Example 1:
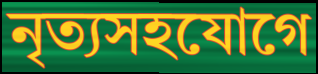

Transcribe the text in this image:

নৃত্যসহযোগে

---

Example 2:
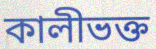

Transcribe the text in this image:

কালীভক্ত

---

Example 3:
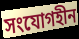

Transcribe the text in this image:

সংযোগহীন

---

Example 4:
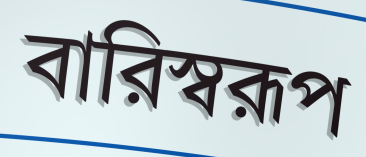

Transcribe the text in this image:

বারিস্বরূপ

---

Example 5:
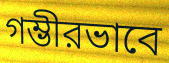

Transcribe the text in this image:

গম্ভীরভাবে